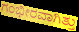
ಗಂಭೀರವಾಗಿತ್ತು